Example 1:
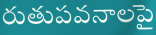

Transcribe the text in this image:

రుతుపవనాలపై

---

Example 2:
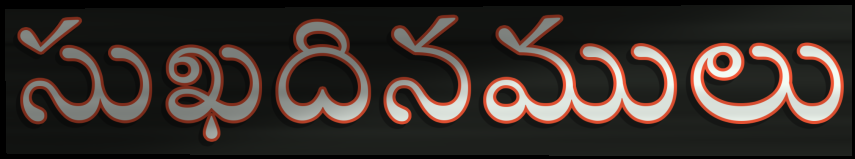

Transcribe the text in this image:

సుఖదినములు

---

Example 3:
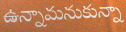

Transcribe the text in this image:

ఉన్నామనుకున్నా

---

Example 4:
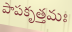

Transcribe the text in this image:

పాపకృత్తమః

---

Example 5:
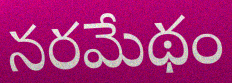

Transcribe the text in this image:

నరమేథం